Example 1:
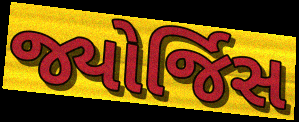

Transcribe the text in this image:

જ્યોર્જિસ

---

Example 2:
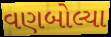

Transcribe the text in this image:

વણબોલ્યા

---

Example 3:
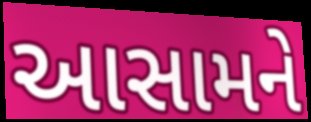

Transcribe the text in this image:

આસામને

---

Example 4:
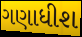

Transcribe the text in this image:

ગણાધીશ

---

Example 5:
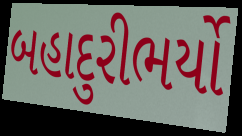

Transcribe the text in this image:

બહાદુરીભર્યો